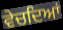
ਵੇਚਦਿਆਂ